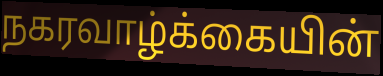
நகரவாழ்க்கையின்